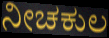
ನೀಚಕುಲ